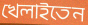
খেলাইতেন